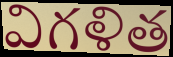
విగళిత